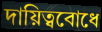
দায়িত্ববোধে